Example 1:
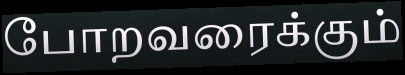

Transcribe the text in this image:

போறவரைக்கும்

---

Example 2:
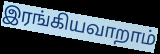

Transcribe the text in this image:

இரங்கியவாறாம்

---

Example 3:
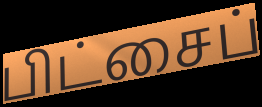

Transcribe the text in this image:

பிட்சைப்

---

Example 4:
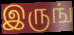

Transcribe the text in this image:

இருங்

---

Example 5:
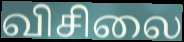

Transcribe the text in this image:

விசிலை